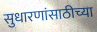
सुधारणांसाठीच्या